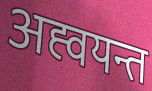
अह्वयन्त